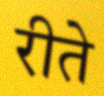
रीते